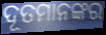
ଦୂତମାନଙ୍କର